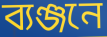
ব্যঞ্জনে